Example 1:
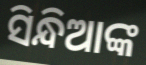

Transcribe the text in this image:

ସିନ୍ଧିଆଙ୍କ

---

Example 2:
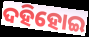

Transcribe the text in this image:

ଦହିହୋଇ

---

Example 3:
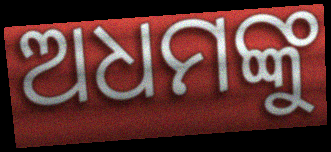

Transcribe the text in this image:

ଅଧମଙ୍କୁ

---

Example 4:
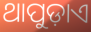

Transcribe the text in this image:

ଥାପୁଡ଼ାଏ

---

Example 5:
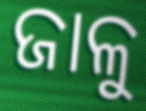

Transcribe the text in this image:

ଜାଳୁ